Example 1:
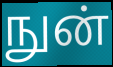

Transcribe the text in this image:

நுன்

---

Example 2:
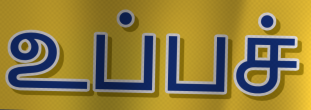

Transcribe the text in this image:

உப்பச்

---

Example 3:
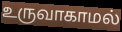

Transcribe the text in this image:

உருவாகாமல்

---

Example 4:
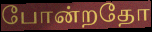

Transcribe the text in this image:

போன்றதோ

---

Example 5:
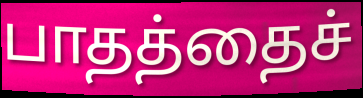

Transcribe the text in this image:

பாதத்தைச்